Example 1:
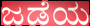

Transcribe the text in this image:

ಜಡೆಯ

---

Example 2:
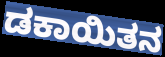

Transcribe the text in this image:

ಡಕಾಯಿತನ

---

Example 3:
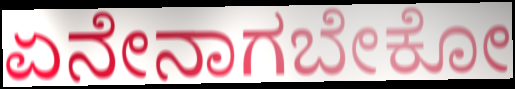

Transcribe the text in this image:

ಏನೇನಾಗಬೇಕೋ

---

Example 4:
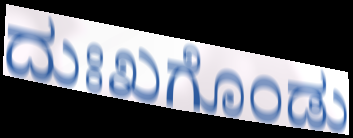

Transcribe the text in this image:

ದುಃಖಗೊಂಡು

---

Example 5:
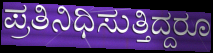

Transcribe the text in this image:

ಪ್ರತಿನಿಧಿಸುತ್ತಿದ್ದರೂ